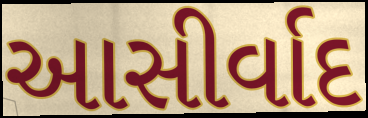
આસીર્વાદ